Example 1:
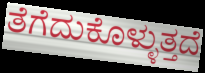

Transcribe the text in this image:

ತೆಗೆದುಕೊಳ್ಳುತ್ತದೆ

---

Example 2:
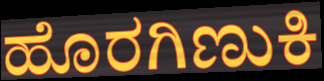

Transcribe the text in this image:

ಹೊರಗಿಣುಕಿ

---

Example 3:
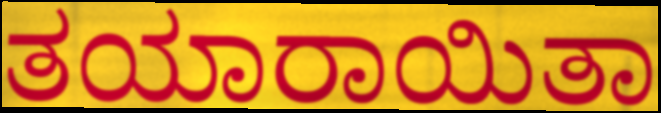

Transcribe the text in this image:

ತಯಾರಾಯಿತಾ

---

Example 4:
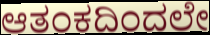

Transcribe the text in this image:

ಆತಂಕದಿಂದಲೇ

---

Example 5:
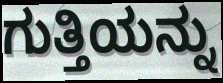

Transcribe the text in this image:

ಗುತ್ತಿಯನ್ನು